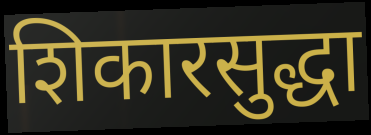
शिकारसुद्धा